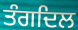
ਤੰਗਦਿਲ